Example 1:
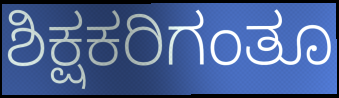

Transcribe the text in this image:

ಶಿಕ್ಷಕರಿಗಂತೂ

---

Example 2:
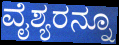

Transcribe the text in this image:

ವೈಶ್ಯರನ್ನೂ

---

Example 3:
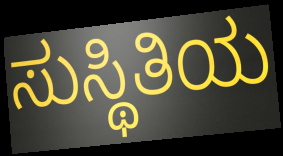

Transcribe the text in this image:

ಸುಸ್ಥಿತಿಯ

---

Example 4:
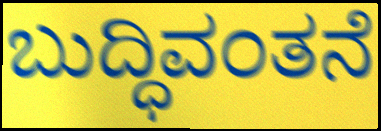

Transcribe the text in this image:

ಬುದ್ಧಿವಂತನೆ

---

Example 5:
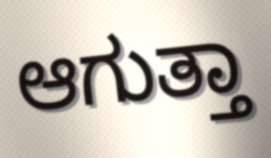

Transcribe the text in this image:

ಆಗುತ್ತಾ